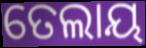
ତେଲାୟ